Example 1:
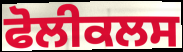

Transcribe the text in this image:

ਫੋਲੀਕਲਸ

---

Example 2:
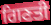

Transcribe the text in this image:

ਗਿਣਤੀ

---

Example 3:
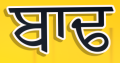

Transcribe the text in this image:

ਬਾਢ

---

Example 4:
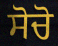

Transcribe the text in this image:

ਸੋਚੋ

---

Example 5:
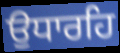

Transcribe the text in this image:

ਉਧਾਰਹਿ